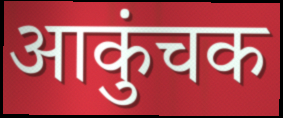
आकुंचक